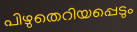
പിഴുതെറിയപ്പെടും